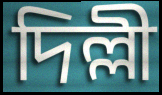
দিল্লী